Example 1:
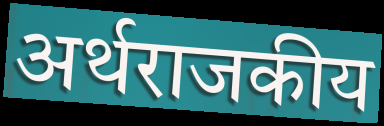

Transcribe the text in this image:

अर्थराजकीय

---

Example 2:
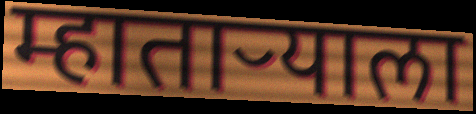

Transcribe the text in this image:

म्हाताऱ्याला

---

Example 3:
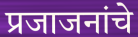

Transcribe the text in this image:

प्रजाजनांचे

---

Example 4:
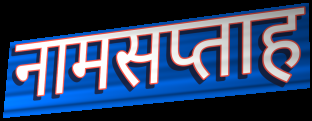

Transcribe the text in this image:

नामसप्ताह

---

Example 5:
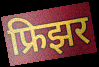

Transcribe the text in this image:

फ्रिझर